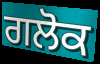
ਗਲੋਕ